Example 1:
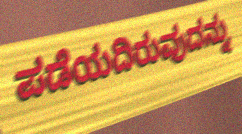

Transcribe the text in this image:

ಪಡೆಯದಿರುವುದನ್ನು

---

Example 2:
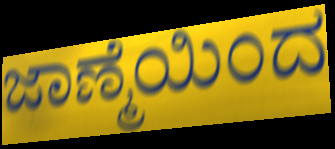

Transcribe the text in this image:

ಜಾಣ್ಮೆಯಿಂದ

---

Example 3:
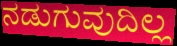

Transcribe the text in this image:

ನಡುಗುವುದಿಲ್ಲ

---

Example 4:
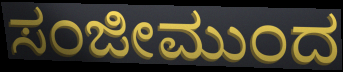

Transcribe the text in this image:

ಸಂಜೀಮುಂದ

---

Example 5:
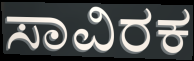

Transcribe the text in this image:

ಸಾವಿರಕ